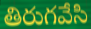
తిరుగవేసి